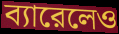
ব্যারেলেও